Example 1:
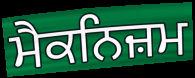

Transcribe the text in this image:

ਮੈਕਨਿਜ਼ਮ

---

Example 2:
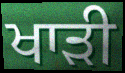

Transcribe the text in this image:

ਖਾੜੀ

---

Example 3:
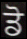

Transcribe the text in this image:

ਡੋ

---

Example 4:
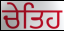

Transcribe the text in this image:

ਚੇਤਿਹ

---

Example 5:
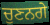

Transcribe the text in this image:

ਚੁਣਨਗੇ